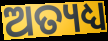
ଅତ୍ୟଧ୍ୟ